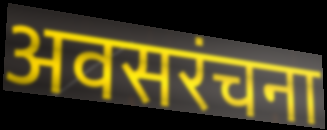
अवसरंचना